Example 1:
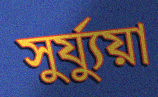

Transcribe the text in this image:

সুর্য্যুয়া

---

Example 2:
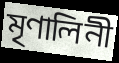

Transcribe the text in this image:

মৃণালিনী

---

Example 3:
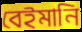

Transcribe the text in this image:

বেইমানি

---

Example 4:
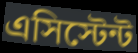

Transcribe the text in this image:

এসিস্টেন্ট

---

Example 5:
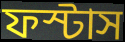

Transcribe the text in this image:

ফস্টাস